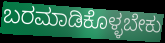
ಬರಮಾಡಿಕೊಳ್ಳಬೇಕು